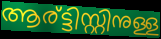
ആര്ട്ടിസ്റ്റിനുള്ള